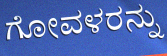
ಗೋವಳರನ್ನು